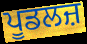
ਪੂਡਲਜ਼